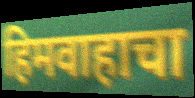
हिमवाहाचा